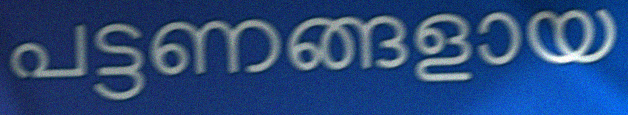
പട്ടണങ്ങളായ